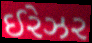
ઈરેઝર